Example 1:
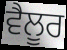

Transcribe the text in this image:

ਵੈਲੂਰ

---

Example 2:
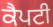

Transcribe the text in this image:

ਕੈਪਟੀ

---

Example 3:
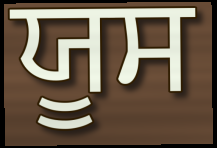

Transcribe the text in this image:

ਯੂਸ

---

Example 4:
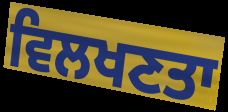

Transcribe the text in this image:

ਵਿਲਖਣਤਾ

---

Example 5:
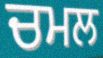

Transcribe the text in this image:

ਚਮਲ